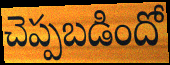
చెప్పబడిందో